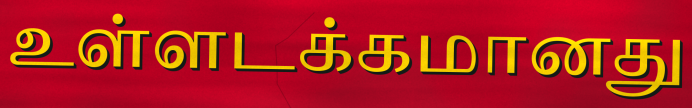
உள்ளடக்கமானது